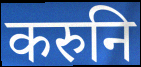
करुनि